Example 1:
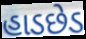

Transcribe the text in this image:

હાડછેડ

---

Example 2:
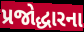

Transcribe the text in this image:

પ્રજોદ્ધારના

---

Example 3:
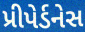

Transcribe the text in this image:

પ્રીપેર્ડનેસ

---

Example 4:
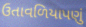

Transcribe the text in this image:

ઉતાવળિયાપણું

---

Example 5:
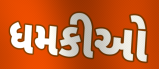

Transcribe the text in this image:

ધમકીઓ